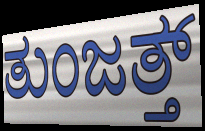
ತುಂಜತ್ತ್